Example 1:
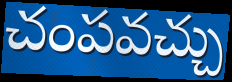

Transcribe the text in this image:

చంపవచ్చు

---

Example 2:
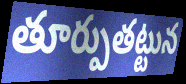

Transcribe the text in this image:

తూర్పుతట్టున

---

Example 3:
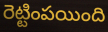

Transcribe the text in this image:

రెట్టింపయింది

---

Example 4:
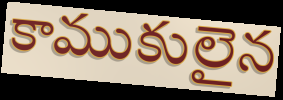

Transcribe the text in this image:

కాముకులైన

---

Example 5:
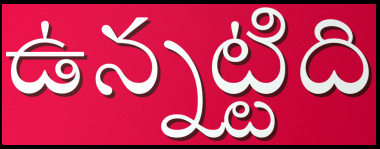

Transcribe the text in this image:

ఉన్నట్టిది